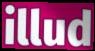
illud